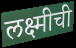
लक्ष्मीची